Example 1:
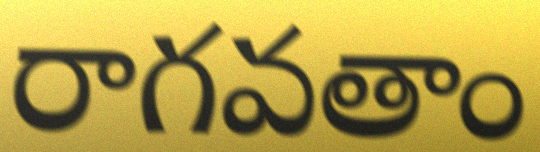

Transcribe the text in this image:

రాగవతాం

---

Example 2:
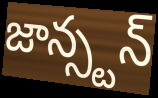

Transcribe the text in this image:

జాన్స్టన్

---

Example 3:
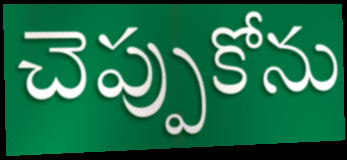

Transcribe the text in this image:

చెప్పుకోను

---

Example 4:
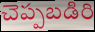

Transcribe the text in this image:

చెప్పబడిరి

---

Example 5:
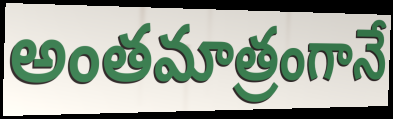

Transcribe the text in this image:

అంతమాత్రంగానే